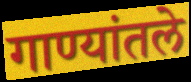
गाण्यांतले